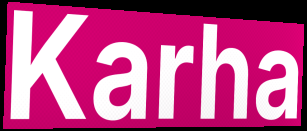
Karha